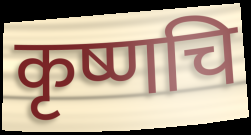
कृष्णचि